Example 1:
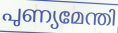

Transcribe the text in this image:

പുണ്യമേന്തി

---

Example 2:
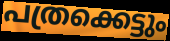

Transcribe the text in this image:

പത്രക്കെട്ടും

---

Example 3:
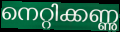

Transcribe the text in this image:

നെറ്റിക്കണ്ണു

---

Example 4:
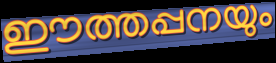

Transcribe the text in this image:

ഈത്തപ്പനയും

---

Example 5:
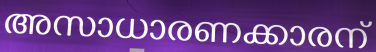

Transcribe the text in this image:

അസാധാരണക്കാരന്